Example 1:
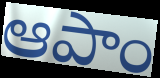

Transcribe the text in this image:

ఆపాం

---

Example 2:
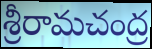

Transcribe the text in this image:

శ్రీరామచంద్ర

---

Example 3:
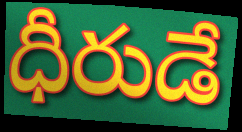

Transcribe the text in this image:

ధీరుడే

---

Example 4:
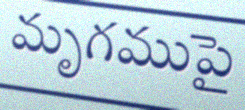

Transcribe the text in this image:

మృగముపై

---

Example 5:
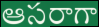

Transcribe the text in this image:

ఆసరాగా